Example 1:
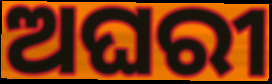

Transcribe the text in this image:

ଅଘରୀ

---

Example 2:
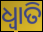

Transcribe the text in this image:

ଧ୍ବାତି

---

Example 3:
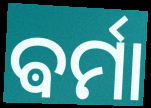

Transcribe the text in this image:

ଵର୍ମା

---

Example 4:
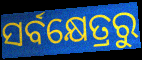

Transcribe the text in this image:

ସର୍ବକ୍ଷେତ୍ରରୁ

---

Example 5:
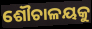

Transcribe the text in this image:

ଶୌଚାଳୟକୁ